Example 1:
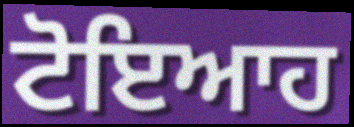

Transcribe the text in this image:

ਟੋਇਆਹ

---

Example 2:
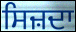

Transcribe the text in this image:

ਸਿਜ਼ਦਾ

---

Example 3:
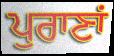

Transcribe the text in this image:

ਪੁਰਾਣਾਂ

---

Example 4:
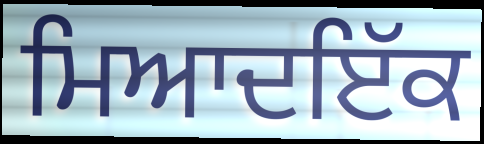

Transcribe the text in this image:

ਮਿਆਦਇੱਕ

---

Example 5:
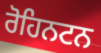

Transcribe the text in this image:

ਰੋਹਿਨਟਨ